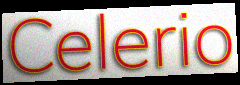
Celerio